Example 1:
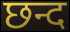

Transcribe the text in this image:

छन्द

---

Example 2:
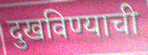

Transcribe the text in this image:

दुखविण्याची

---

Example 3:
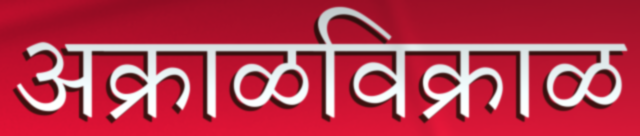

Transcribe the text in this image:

अक्राळविक्राळ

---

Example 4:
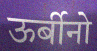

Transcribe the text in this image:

ऊर्बीनो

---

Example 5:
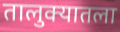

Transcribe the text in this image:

तालुक्यातला